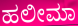
ಹಲೀಮಾ